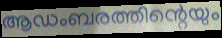
ആഡംബരത്തിന്റെയും